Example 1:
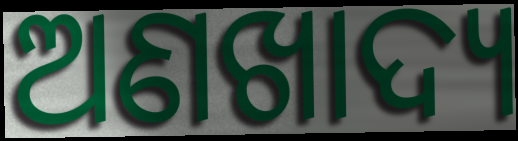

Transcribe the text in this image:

ଅଣଖାଦ୍ୟ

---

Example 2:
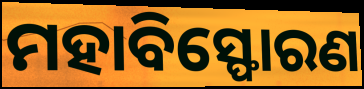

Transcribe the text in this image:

ମହାବିସ୍ଫୋରଣ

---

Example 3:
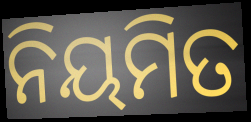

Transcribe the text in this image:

ନିୟମିତ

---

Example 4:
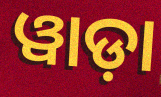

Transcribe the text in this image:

ୱାଡ଼ା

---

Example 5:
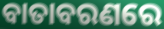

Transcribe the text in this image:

ବାତାବରଣରେ